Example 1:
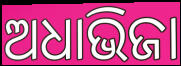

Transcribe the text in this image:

ଅଧାଭିଜା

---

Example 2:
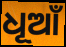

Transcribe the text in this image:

ଧୂଆଁ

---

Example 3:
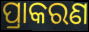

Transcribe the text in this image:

ପ୍ରାକରଣ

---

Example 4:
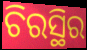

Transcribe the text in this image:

ଚିରସ୍ଥିର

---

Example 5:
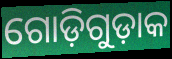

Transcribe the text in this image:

ଗୋଡ଼ିଗୁଡ଼ାକ